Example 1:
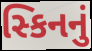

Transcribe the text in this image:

સ્કિનનું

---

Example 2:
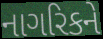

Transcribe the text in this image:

નાગરિકને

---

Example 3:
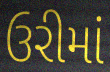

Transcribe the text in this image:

ઉરીમાં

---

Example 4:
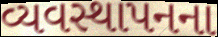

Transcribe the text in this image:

વ્યવસ્થાપનના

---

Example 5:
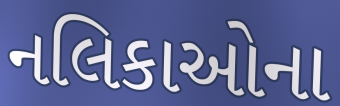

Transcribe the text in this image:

નલિકાઓના